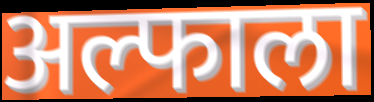
अल्फाला